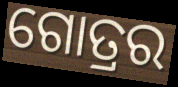
ଗୋତ୍ରର